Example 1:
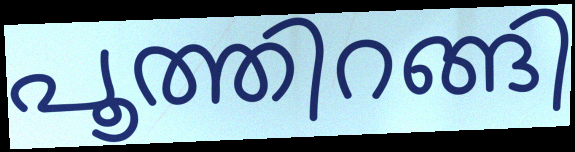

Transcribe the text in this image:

പൂത്തിറങ്ങി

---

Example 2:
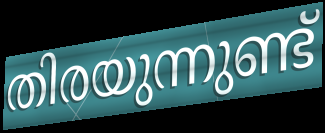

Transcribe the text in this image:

തിരയുന്നുണ്ട്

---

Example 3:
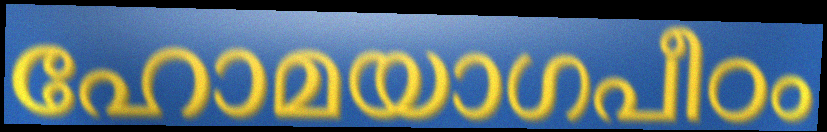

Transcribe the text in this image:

ഹോമയാഗപീഠം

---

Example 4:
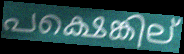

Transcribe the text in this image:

പക്ഷെങ്കില്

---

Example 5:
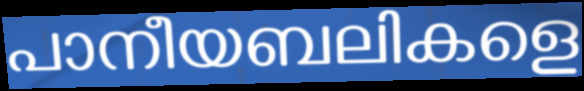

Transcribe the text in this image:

പാനീയബലികളെ